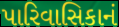
પારિવાસિકાનં